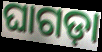
ଘାଗଡ଼ା